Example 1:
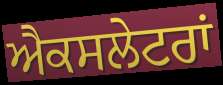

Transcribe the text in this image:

ਐਕਸਲੇਟਰਾਂ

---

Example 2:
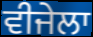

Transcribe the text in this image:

ਵੀਜੇਲਾ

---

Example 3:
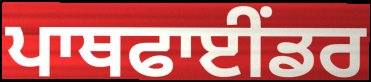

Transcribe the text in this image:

ਪਾਥਫਾਈਂਡਰ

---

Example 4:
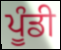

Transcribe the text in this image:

ਪੂੰਡੀ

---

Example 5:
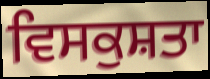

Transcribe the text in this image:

ਵਿਸਕੁਸ਼ਤਾ